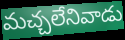
మచ్చలేనివాడు